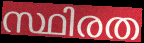
സ്ഥിരത